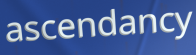
ascendancy